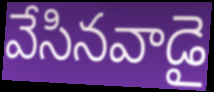
వేసినవాడై